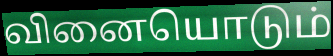
வினையொடும்